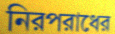
নিরপরাধের